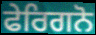
ਫੇਰਿਗਨੋ